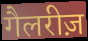
गैलरीज़